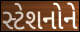
સ્ટેશનોને